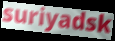
suriyadsk